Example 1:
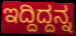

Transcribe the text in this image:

ಇದ್ದಿದ್ದನ್ನ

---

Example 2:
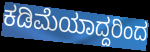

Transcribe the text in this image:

ಕಡಿಮೆಯಾದ್ದರಿಂದ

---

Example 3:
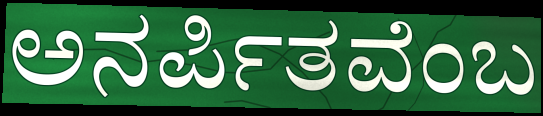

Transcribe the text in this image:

ಅನರ್ಪಿತವೆಂಬ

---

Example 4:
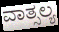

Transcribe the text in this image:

ವಾತ್ಸಲ್ಯ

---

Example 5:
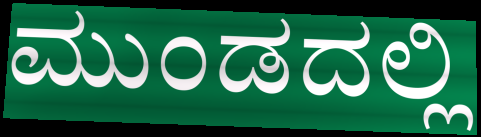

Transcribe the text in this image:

ಮುಂಡದಲ್ಲಿ